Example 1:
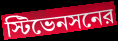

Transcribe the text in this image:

স্টিভেনসনের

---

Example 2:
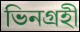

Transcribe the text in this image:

ভিনগ্রহী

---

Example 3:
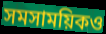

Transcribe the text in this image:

সমসাময়িকও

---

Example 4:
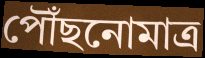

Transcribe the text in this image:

পৌঁছনোমাত্র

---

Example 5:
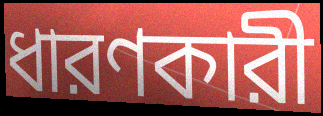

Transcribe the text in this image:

ধারণকারী